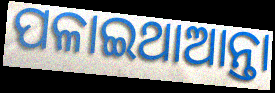
ପଳାଇଥାଆନ୍ତା